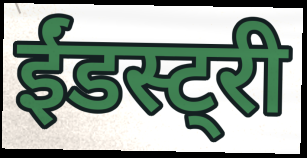
ईंडस्ट्री